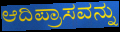
ಆದಿಪ್ರಾಸವನ್ನು